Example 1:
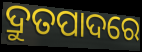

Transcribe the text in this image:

ଦ୍ରୁତପାଦରେ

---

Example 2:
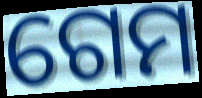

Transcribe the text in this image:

ଗେମ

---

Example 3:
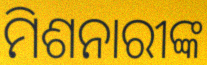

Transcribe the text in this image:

ମିଶନାରୀଙ୍କ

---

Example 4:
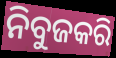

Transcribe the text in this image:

ନିବୁଜକରି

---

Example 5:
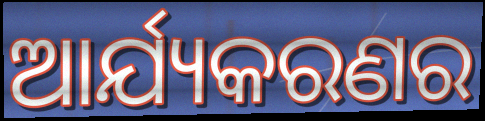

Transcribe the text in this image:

ଆର୍ଯ୍ୟକରଣର